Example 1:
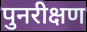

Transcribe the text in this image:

पुनरीक्षण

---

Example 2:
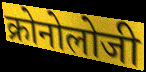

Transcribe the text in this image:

क्रोनोलोजी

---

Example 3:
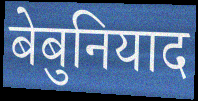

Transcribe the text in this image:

बेबुनियाद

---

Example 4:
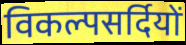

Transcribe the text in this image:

विकल्पसर्दियों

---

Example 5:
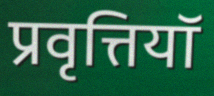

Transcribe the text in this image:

प्रवृत्तियॉ